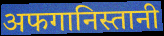
अफगानिस्तानी